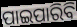
ପାଇପାରିବି